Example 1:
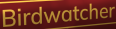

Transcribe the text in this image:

Birdwatcher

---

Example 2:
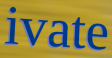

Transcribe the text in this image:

ivate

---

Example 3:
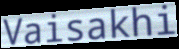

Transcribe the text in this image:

Vaisakhi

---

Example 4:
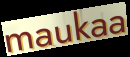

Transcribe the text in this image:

maukaa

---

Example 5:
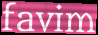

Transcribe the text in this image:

favim